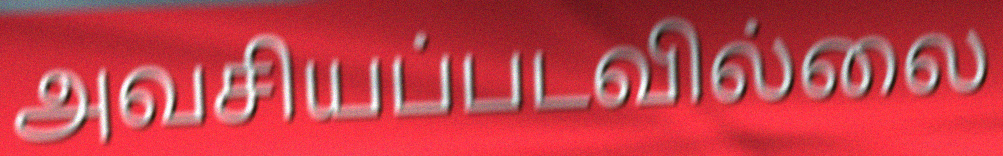
அவசியப்படவில்லை